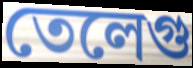
তেলেগু